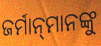
ଜର୍ମାନ୍‌ମାନଙ୍କୁ